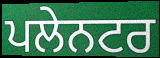
ਪਲੇਨਟਰ